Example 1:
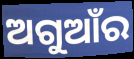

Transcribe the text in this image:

ଅଗୁଆଁର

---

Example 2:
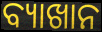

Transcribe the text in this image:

ବ୍ୟାଖାନ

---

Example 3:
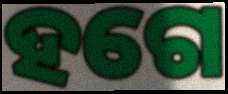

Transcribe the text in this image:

ହଗେ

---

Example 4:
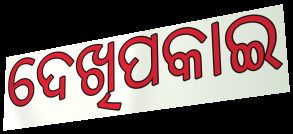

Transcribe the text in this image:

ଦେଖିପକାଇ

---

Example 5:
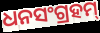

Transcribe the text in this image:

ଧନସଂଗ୍ରହମ୍